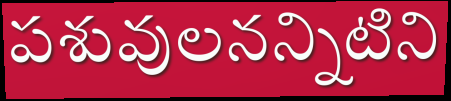
పశువులనన్నిటిని